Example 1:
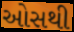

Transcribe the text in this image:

ઓસથી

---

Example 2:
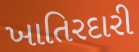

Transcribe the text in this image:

ખાતિરદારી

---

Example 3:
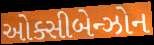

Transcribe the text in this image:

ઓક્સીબેન્ઝોન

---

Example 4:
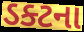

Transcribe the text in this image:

ડક્ટના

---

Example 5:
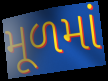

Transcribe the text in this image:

મૂળમાં